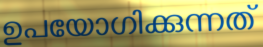
ഉപയോഗിക്കുന്നത്